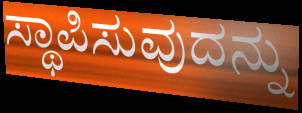
ಸ್ಥಾಪಿಸುವುದನ್ನು